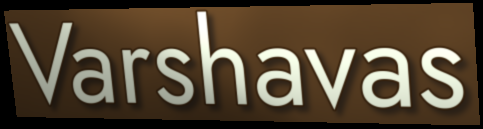
Varshavas